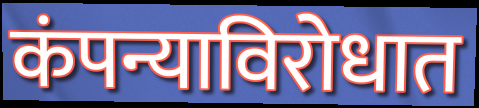
कंपन्याविरोधात